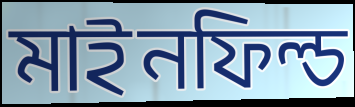
মাইনফিল্ড